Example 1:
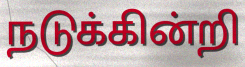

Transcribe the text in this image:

நடுக்கின்றி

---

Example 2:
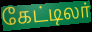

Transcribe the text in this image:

கேட்டிலர்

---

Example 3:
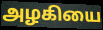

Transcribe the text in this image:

அழகியை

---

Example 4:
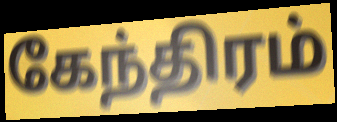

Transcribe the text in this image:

கேந்திரம்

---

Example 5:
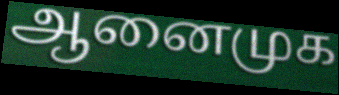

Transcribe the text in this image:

ஆனைமுக